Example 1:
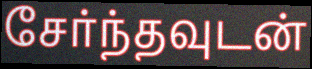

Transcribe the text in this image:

சேர்ந்தவுடன்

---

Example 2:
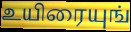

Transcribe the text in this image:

உயிரையுங்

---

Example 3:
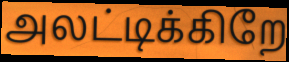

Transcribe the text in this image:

அலட்டிக்கிறே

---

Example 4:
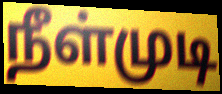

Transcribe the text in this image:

நீள்முடி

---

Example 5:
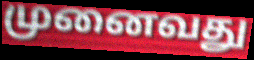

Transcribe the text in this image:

முனைவது